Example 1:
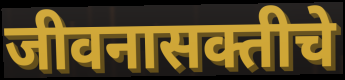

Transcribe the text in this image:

जीवनासक्तीचे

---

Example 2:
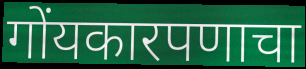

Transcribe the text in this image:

गोंयकारपणाचा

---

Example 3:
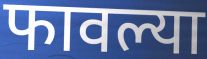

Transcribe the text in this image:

फावल्या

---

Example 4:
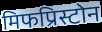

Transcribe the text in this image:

मिफप्रिस्टोन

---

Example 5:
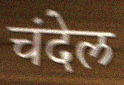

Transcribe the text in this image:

चंदेल